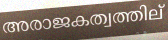
അരാജകത്വത്തില്